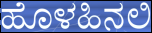
ಹೊಳಹಿನಲಿ